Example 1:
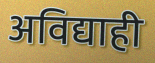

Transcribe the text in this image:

अविद्याही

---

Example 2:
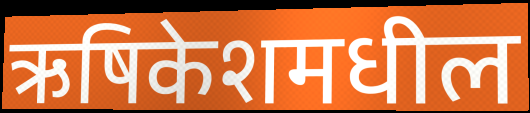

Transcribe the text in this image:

ऋषिकेशमधील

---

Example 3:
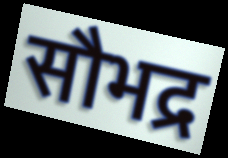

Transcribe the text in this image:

सौभद्र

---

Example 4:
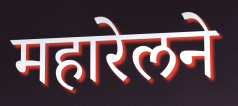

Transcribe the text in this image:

महारेलने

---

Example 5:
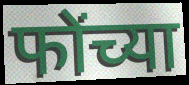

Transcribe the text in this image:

फोंच्या